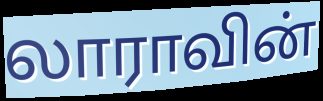
லாராவின்